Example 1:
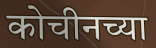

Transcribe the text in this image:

कोचीनच्या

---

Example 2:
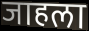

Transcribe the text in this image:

जाहला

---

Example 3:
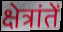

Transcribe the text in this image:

क्षेत्रांतें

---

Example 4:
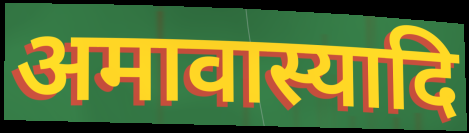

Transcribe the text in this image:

अमावास्यादि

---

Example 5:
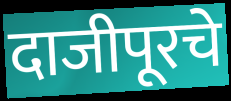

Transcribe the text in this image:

दाजीपूरचे